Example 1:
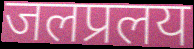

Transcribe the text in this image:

जलप्रलय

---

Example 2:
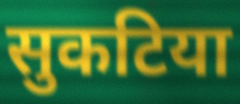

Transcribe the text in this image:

सुकटिया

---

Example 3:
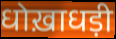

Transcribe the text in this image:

धोख़ाधड़ी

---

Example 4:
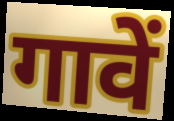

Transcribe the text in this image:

गावें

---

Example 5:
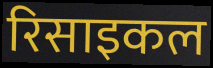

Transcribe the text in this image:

रिसाइकल